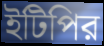
ইটিপির